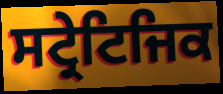
ਸਟ੍ਰੇਟਿਜਿਕ